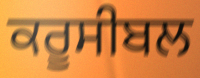
ਕਰੂਸੀਬਲ